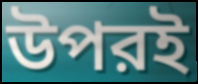
উপরই